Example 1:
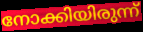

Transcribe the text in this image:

നോക്കിയിരുന്ന്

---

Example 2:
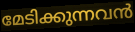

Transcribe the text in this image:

മേടിക്കുന്നവൻ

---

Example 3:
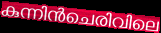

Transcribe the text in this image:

കുന്നിൻചെരിവിലെ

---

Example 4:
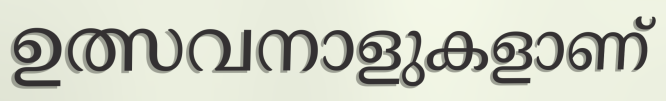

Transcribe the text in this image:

ഉത്സവനാളുകളാണ്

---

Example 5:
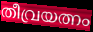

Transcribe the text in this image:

തീവ്രയത്നം